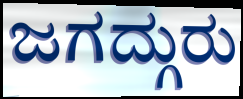
ಜಗದ್ಗುರು